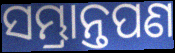
ସମ୍ଭ୍ରାନ୍ତପଣ